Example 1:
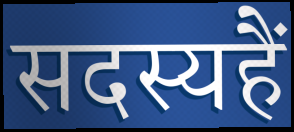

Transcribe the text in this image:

सदस्यहैं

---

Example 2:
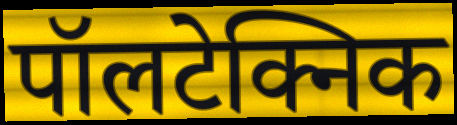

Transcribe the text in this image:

पॉलटेक्निक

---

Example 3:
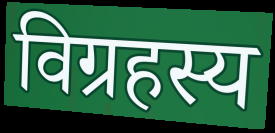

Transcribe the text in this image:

विग्रहस्य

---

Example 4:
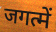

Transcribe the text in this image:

जगत्में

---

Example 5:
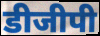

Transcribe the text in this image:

डीजीपी